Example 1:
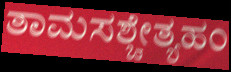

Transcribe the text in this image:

ತಾಮಸಶ್ಚೇತ್ಯಹಂ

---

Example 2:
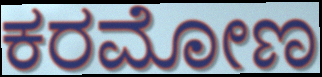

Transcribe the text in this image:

ಕರಮೋಣ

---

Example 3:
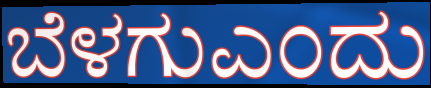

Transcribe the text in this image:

ಬೆಳಗುಎಂದು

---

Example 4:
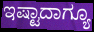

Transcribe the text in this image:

ಇಷ್ಟಾದಾಗ್ಯೂ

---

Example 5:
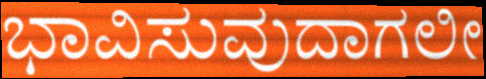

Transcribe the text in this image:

ಭಾವಿಸುವುದಾಗಲೀ